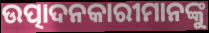
ଉତ୍ପାଦନକାରୀମାନଙ୍କୁ